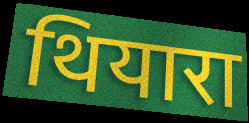
थियारा